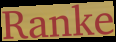
Ranke